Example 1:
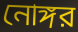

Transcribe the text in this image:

নোঙ্গর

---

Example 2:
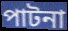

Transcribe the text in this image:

পাটনা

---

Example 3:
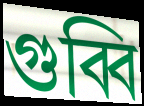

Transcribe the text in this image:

গুব্বি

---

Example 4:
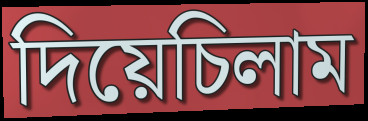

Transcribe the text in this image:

দিয়েচিলাম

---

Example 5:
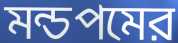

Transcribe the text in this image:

মন্ডপমের